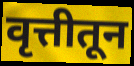
वृत्तीतून